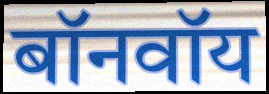
बॉनवॉय